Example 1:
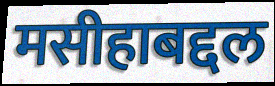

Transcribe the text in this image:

मसीहाबद्दल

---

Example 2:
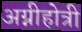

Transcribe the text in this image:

अग्नीहोत्री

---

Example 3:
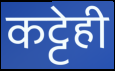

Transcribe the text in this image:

कट्टेही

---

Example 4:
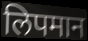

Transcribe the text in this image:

लिपमान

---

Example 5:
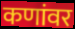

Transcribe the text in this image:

कणांवर